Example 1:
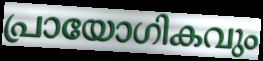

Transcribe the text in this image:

പ്രായോഗികവും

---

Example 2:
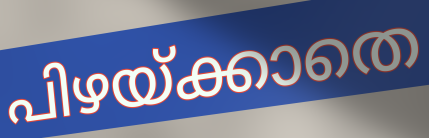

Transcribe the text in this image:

പിഴയ്ക്കാതെ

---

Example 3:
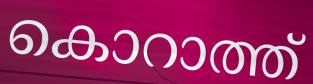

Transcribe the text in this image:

കൊറാത്ത്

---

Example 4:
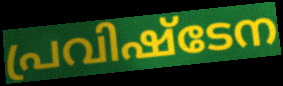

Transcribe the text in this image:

പ്രവിഷ്ടേന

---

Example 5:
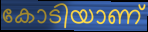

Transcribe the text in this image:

കോടിയാണ്